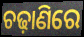
ଚଢ଼ାଣିରେ